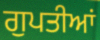
ਗੁਪਤੀਆਂ